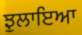
ਝੁਲਾਇਆ